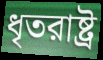
ধৃতরাষ্ট্র